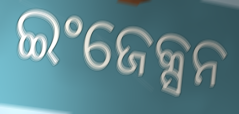
ଇଂଜେକ୍ସନ